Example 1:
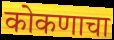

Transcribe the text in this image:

कोकणाचा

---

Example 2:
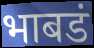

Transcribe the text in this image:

भाबडं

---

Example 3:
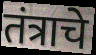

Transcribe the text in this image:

तंत्राचे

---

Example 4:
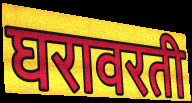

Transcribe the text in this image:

घरावरती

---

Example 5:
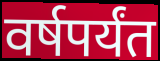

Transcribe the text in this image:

वर्षपर्यंत